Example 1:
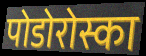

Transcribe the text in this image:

पोडोरोस्का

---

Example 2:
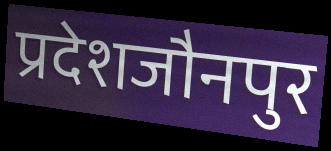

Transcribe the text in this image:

प्रदेशजौनपुर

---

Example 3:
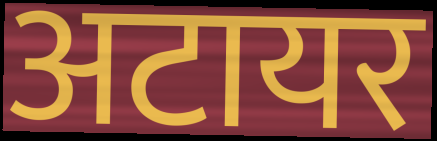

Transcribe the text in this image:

अटायर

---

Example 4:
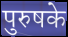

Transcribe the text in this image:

पुरुषके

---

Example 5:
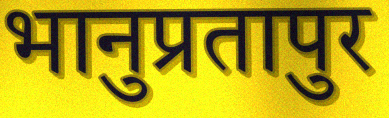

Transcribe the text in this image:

भानुप्रतापुर